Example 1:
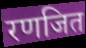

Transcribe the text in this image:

रणजित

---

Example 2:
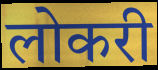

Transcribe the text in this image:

लोकरी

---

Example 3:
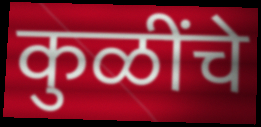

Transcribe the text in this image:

कुळींचे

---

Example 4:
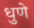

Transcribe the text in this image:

धुणे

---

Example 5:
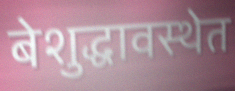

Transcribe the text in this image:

बेशुद्धावस्थेत